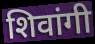
शिवांगी